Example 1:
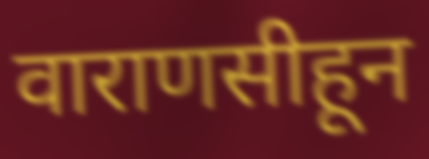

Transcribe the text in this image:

वाराणसीहून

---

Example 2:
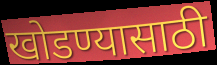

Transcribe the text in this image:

खोडण्यासाठी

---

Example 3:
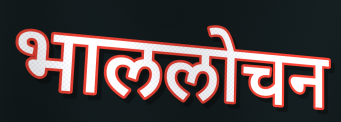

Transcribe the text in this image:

भाललोचन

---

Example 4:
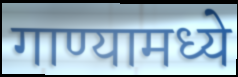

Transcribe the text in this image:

गाण्यामध्ये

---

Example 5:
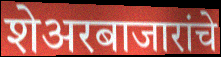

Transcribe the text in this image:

शेअरबाजारांचे